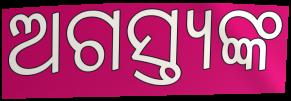
ଅଗସ୍ତ୍ୟଙ୍କ